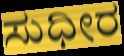
ಸುಧೀರ